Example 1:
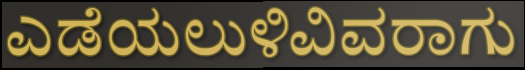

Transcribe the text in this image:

ಎಡೆಯಲುಳಿವಿವರಾಗು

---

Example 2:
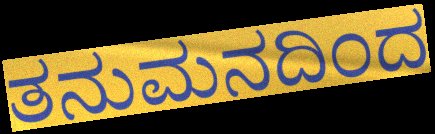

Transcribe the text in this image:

ತನುಮನದಿಂದ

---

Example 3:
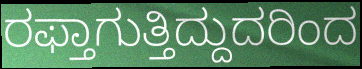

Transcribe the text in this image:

ರಫ್ತಾಗುತ್ತಿದ್ದುದರಿಂದ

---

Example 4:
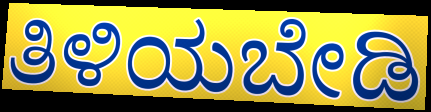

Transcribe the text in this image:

ತಿಳಿಯಬೇಡಿ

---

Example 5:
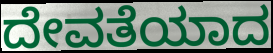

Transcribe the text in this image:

ದೇವತೆಯಾದ